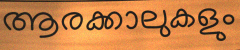
ആരക്കാലുകളും